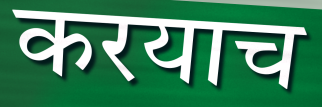
करयाच